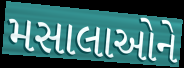
મસાલાઓને